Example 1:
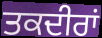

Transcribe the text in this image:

ਤਕਦੀਰਾਂ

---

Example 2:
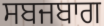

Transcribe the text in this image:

ਸਬਜਬਾਗ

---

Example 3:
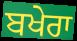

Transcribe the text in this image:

ਬਖੇਰਾ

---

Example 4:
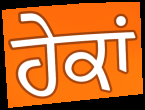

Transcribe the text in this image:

ਹੇਕਾਂ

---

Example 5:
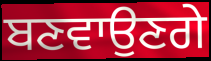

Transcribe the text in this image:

ਬਣਵਾਉਣਗੇ